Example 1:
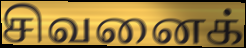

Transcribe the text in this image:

சிவனைக்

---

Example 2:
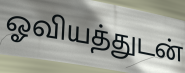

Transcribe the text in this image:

ஓவியத்துடன்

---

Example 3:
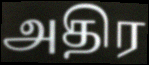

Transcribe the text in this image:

அதிர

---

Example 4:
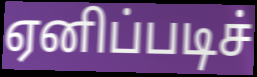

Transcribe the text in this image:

ஏனிப்படிச்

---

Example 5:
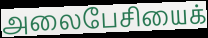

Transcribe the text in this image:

அலைபேசியைக்